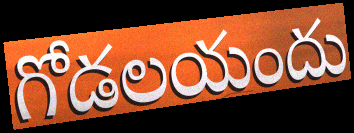
గోడలయందు